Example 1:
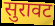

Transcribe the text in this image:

सुरावट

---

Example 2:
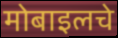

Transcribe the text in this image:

मोबाइलचे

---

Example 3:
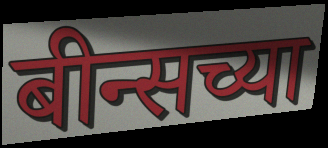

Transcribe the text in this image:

बीन्सच्या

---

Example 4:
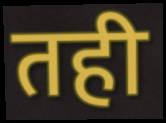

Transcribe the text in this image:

तही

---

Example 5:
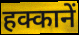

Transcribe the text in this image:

हक्कानें